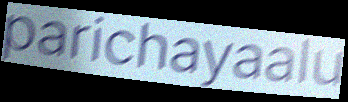
parichayaalu